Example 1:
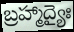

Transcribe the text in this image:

బ్రహ్మాద్యైః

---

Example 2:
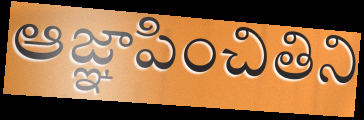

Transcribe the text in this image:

ఆజ్ఞాపించితిని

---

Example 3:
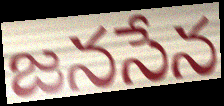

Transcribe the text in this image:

జనసేన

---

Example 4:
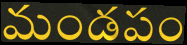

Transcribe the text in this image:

మండపం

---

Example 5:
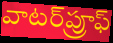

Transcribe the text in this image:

వాటర్‌ప్రూఫ్